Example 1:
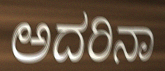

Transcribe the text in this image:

ಅದರಿನಾ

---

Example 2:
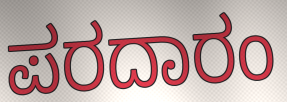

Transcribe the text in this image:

ಪರದಾರಂ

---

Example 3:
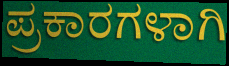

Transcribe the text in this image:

ಪ್ರಕಾರಗಳಾಗಿ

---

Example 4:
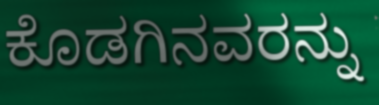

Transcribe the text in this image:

ಕೊಡಗಿನವರನ್ನು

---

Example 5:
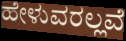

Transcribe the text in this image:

ಹೇಳುವರಲ್ಲವೆ